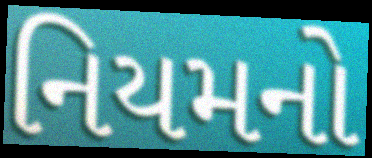
નિયમનો